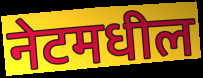
नेटमधील